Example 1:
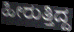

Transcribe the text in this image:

ಹೀರುತ್ತಿದ್ದ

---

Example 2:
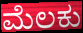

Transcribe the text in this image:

ಮೆಲಕು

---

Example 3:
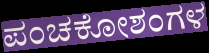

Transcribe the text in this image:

ಪಂಚಕೋಶಂಗಳ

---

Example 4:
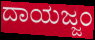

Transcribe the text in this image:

ದಾಯಜ್ಜಂ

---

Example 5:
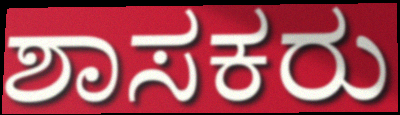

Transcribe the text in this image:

ಶಾಸಕರು